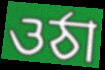
ওঠা